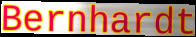
Bernhardt